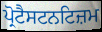
ਪ੍ਰੋਟੈਸਟਨਟਿਜ਼ਮ